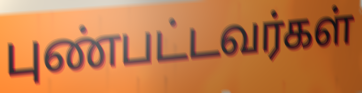
புண்பட்டவர்கள்